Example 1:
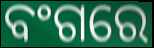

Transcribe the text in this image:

ବଂଗରେ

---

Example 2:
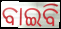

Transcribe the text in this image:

ବାଇବି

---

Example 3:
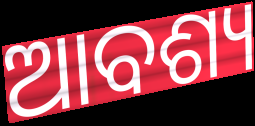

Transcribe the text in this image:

ଆବଶ୍ୟ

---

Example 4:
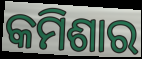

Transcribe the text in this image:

କମିଶାର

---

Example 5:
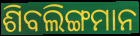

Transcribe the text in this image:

ଶିବଲିଙ୍ଗମାନ